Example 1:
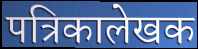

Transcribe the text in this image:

पत्रिकालेखक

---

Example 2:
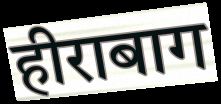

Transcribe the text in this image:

हीराबाग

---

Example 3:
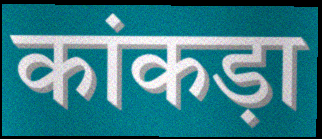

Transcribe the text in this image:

कांकड़ा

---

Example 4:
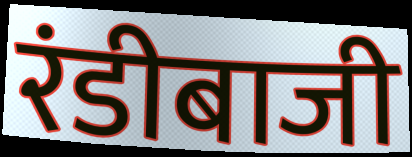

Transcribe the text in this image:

रंडीबाजी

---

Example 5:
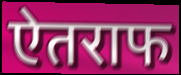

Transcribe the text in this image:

ऐतराफ